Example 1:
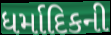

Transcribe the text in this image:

ધર્માદિકની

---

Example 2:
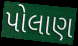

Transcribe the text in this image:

પોલાણ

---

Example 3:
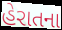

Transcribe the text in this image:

હેરાતના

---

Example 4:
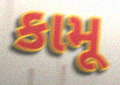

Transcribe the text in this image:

કામૂ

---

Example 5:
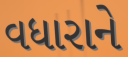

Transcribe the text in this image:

વધારાને